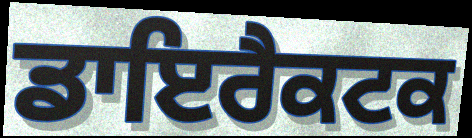
ਡਾਇਰੈਕਟਕ